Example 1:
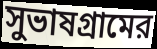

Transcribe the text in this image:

সুভাষগ্রামের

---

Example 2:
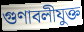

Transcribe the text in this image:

গুণাবলীযুক্ত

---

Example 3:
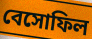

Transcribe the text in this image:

বেসোফিল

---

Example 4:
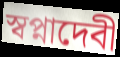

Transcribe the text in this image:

স্বপ্নাদেবী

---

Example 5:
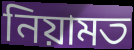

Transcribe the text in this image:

নিয়ামত